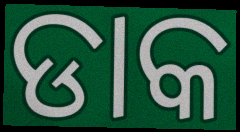
ଡାକ